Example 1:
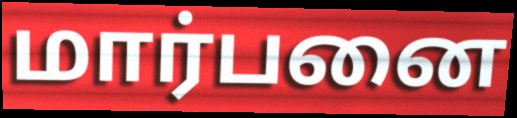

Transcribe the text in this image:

மார்பனை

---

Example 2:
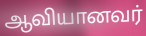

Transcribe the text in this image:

ஆவியானவர்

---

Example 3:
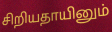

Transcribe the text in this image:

சிறியதாயினும்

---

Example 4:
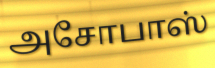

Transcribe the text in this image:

அசோபாஸ்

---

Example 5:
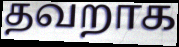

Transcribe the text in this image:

தவறாக